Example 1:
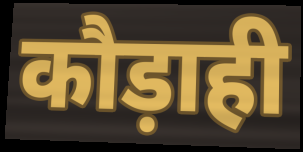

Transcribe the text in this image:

कौड़ाही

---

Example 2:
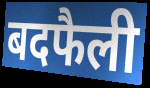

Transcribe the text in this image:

बदफैली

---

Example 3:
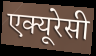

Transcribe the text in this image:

एक्यूरेसी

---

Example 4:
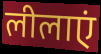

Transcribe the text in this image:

लीलाएं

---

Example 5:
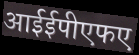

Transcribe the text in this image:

आईईपीएफए